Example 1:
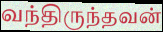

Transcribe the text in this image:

வந்திருந்தவன்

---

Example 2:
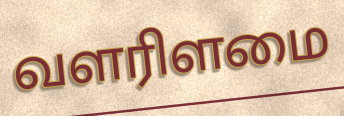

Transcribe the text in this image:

வளரிளமை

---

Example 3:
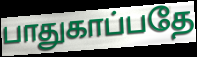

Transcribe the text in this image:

பாதுகாப்பதே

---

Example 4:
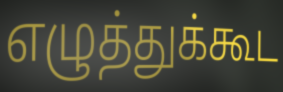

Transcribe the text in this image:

எழுத்துக்கூட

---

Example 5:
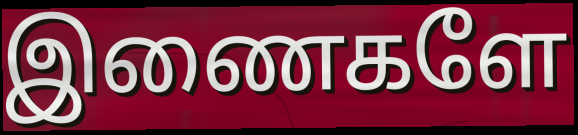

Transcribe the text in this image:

இணைகளே